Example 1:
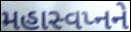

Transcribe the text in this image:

મહાસ્વપ્નને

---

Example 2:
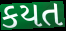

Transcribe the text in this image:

કયત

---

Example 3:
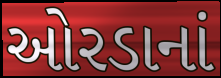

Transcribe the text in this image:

ઓરડાનાં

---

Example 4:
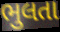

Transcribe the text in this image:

ભુલતા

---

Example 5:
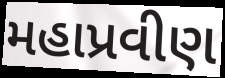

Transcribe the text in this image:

મહાપ્રવીણ